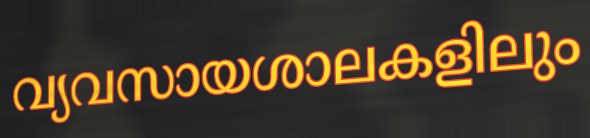
വ്യവസായശാലകളിലും